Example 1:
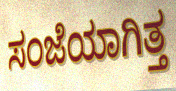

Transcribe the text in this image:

ಸಂಜೆಯಾಗಿತ್ತ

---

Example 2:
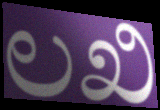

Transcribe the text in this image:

ಲಖಿ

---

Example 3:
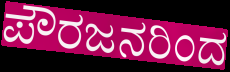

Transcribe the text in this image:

ಪೌರಜನರಿಂದ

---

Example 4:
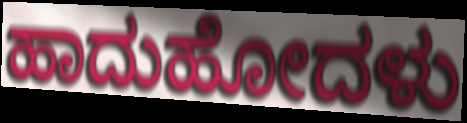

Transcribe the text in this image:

ಹಾದುಹೋದಳು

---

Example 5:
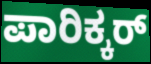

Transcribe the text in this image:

ಪಾರಿಕ್ಕರ್